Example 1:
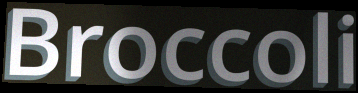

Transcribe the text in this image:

Broccoli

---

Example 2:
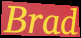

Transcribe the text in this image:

Brad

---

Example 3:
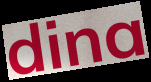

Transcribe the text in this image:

dina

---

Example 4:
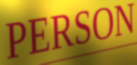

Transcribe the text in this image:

PERSON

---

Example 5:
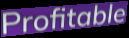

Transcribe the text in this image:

Profitable